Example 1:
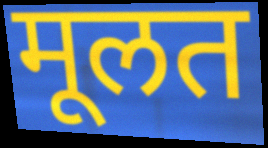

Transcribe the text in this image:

मूलत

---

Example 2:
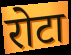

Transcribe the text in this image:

रोटा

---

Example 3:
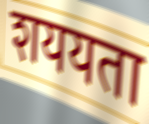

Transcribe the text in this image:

शययता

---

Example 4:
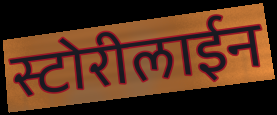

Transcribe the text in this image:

स्टोरीलाईन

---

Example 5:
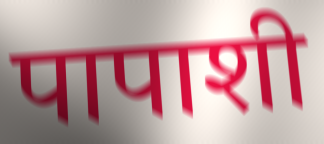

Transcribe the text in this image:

पापाशी